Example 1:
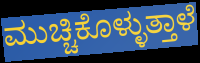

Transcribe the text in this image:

ಮುಚ್ಚಿಕೊಳ್ಳುತ್ತಾಳೆ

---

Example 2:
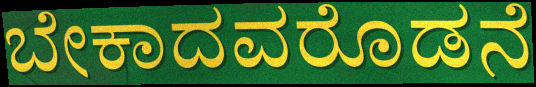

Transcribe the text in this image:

ಬೇಕಾದವರೊಡನೆ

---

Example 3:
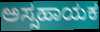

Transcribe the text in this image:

ಅಸ್ಸಹಾಯಕ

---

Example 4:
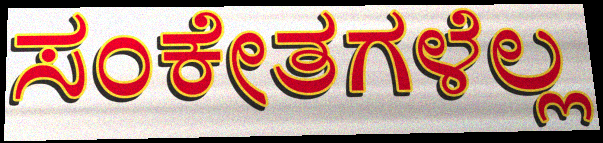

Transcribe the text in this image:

ಸಂಕೇತಗಳೆಲ್ಲ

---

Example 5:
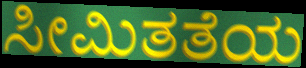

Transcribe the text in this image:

ಸೀಮಿತತೆಯ